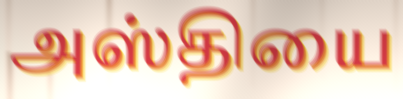
அஸ்தியை